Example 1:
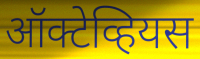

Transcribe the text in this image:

ऑक्टेव्हियस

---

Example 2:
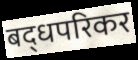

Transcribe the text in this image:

बद्धपरिकर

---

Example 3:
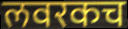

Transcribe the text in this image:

लवरकच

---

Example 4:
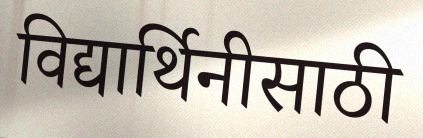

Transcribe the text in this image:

विद्यार्थिनीसाठी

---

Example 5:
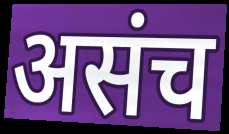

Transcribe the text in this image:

असंच